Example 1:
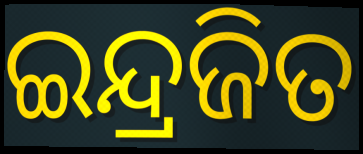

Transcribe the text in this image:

ଇନ୍ଦ୍ରଜିତ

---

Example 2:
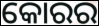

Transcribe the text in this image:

କୋରର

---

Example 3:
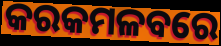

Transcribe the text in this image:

କରକମଳବରେ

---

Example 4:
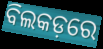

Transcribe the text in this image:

ବିଲକଡ଼ରେ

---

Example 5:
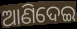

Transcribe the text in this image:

ଆଣିଦେଇ